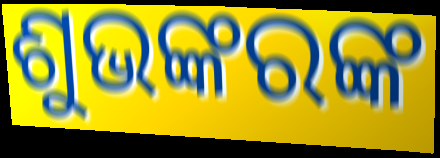
ଶୁଭଙ୍କରଙ୍କ